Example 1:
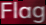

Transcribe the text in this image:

Flag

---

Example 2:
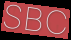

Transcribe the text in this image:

SBC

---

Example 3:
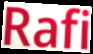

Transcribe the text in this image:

Rafi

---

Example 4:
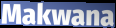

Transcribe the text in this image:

Makwana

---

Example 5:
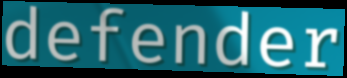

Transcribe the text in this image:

defender